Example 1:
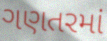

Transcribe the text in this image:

ગણતરમાં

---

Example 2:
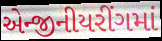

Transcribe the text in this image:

એન્જીનીયરીંગમાં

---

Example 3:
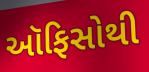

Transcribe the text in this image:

ઑફિસોથી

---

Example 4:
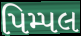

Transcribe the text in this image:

પિમ્પલ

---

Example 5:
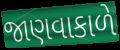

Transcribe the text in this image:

જાણવાકાળે